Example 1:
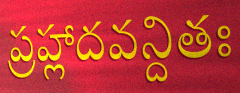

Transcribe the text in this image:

ప్రహ్లాదవన్దితః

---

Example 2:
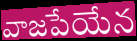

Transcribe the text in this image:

వాజపేయేన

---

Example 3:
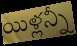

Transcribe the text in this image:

యిళ్లన్నీ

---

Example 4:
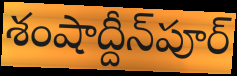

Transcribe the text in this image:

శంషాద్దీన్‌పూర్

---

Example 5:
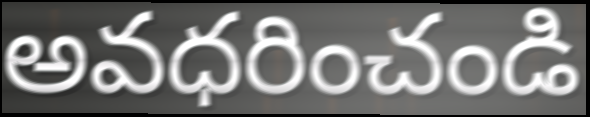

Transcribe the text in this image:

అవధరించండి